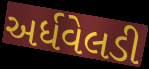
અર્ધવેલડી